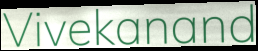
Vivekanand